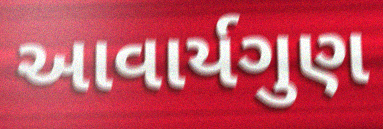
આવાર્યગુણ